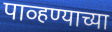
पाव्हण्याच्या